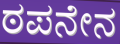
ಠಪನೇನ